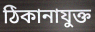
ঠিকানাযুক্ত